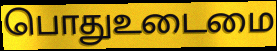
பொதுஉடைமை